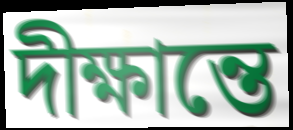
দীক্ষান্তে